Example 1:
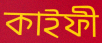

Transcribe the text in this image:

কাইফী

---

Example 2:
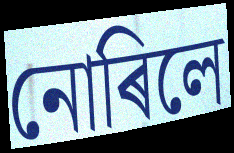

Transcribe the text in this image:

নোৰিলে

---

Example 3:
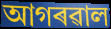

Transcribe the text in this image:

আগৰৱাল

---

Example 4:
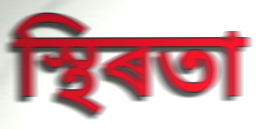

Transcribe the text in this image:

স্থিৰতা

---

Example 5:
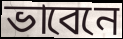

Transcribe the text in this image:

ভাবেনে